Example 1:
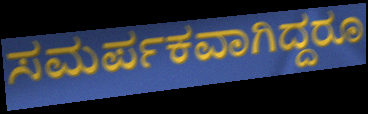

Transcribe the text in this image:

ಸಮರ್ಪಕವಾಗಿದ್ದರೂ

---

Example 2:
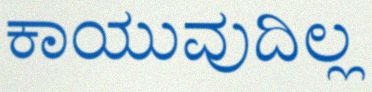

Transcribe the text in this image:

ಕಾಯುವುದಿಲ್ಲ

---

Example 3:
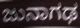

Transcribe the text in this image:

ಜುನಾಗಢ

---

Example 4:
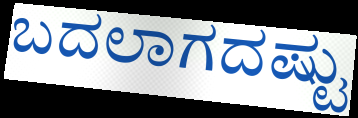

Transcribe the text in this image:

ಬದಲಾಗದಷ್ಟು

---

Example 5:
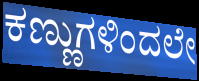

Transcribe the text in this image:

ಕಣ್ಣುಗಳಿಂದಲೇ